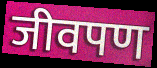
जीवपण